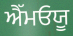
ਐੱਮਓਯੂ